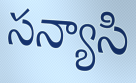
సన్యాసి